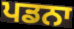
ਪਡਨਾ